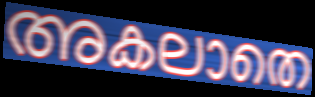
അകലാതെ